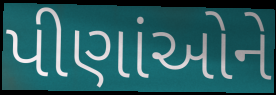
પીણાંઓને